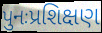
પુનઃપ્રશિક્ષણ